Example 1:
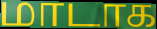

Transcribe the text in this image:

மாடாக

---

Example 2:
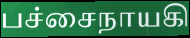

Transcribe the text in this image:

பச்சைநாயகி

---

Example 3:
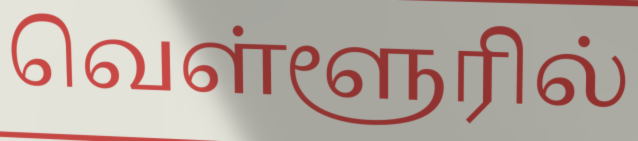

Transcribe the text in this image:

வெள்ளூரில்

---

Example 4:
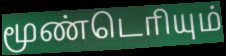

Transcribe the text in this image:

மூண்டெரியும்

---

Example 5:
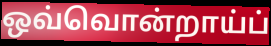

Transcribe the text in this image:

ஒவ்வொன்றாய்ப்